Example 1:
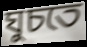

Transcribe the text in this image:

ঘুচতে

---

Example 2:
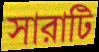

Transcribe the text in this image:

সারাটি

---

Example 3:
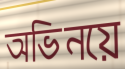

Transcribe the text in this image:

অভিনয়ে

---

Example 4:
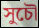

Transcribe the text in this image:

সুচৌ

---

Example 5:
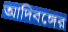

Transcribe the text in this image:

আদিবঙ্গের